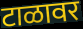
टाळावर